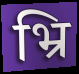
भ्रि